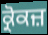
ਕ੍ਰੋਕਜ਼